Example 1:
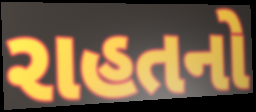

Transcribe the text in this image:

રાહતનો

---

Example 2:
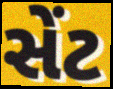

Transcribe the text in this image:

સેંટ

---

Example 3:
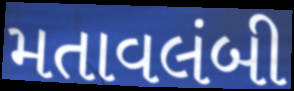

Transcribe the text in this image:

મતાવલંબી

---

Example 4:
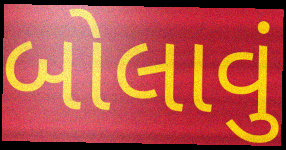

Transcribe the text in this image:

બોલાવું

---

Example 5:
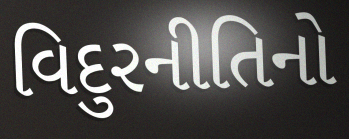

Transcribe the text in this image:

વિદુરનીતિનો